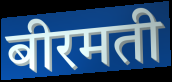
बीरमती